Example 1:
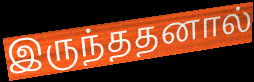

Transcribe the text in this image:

இருந்ததனால்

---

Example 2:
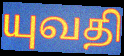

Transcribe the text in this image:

யுவதி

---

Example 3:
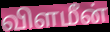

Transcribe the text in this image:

விளமீன்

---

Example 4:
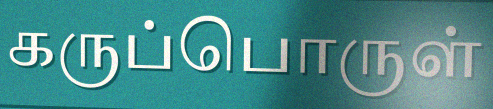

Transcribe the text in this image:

கருப்பொருள்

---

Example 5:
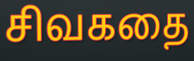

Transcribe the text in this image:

சிவகதை